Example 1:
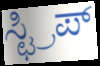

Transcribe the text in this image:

ಸ್ಟ್ರಿಪ್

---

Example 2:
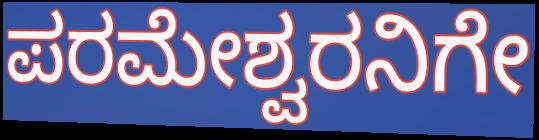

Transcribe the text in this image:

ಪರಮೇಶ್ವರನಿಗೇ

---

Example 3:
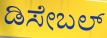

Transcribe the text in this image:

ಡಿಸೇಬಲ್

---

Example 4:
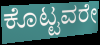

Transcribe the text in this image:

ಕೊಟ್ಟವರೇ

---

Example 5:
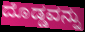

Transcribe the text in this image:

ದೊಡ್ಡವನ್ನು